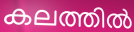
കലത്തിൽ